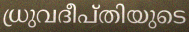
ധ്രുവദീപ്തിയുടെ